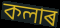
কলাৰ